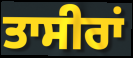
ਤਾਸੀਰਾਂ